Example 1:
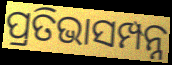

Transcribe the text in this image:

ପ୍ରତିଭାସମ୍ପନ୍ନ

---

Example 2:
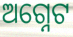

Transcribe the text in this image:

ଅଗ୍ନେଟ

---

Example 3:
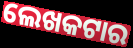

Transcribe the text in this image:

ଲେଖକଟାର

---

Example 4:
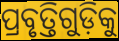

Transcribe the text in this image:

ପ୍ରବୃତ୍ତିଗୁଡ଼ିକୁ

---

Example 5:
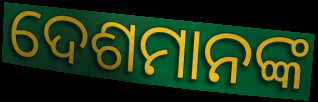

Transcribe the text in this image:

ଦେଶମାନଙ୍କ